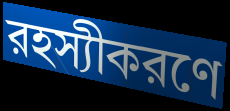
রহস্যীকরণে